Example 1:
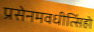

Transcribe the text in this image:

प्रसेनमवधीत्सिंहो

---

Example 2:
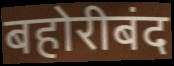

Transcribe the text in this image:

बहोरीबंद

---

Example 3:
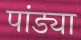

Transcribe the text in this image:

पांड्या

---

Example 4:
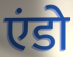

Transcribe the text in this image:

एंडो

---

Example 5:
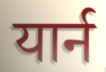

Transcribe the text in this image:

यार्न